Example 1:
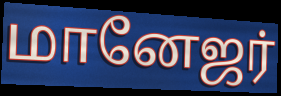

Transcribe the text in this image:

மானேஜர்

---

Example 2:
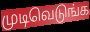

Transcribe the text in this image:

முடிவெடுங்க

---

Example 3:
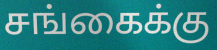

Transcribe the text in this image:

சங்கைக்கு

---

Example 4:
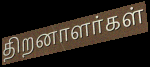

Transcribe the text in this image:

திறனாளர்கள்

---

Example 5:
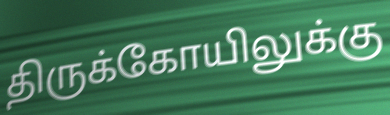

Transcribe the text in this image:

திருக்கோயிலுக்கு